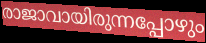
രാജാവായിരുന്നപ്പോഴും